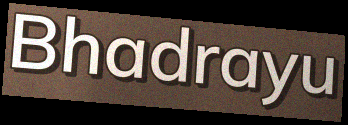
Bhadrayu